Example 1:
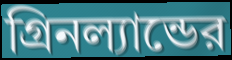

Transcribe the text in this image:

গ্রিনল্যান্ডের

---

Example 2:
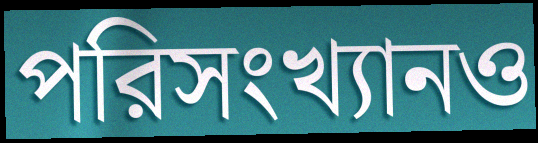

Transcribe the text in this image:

পরিসংখ্যানও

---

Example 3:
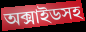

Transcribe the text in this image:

অক্সাইডসহ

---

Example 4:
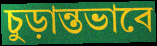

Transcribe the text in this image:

চুড়ান্তভাবে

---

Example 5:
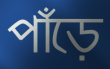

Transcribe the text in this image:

পাঁড়ে